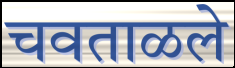
चवताळले